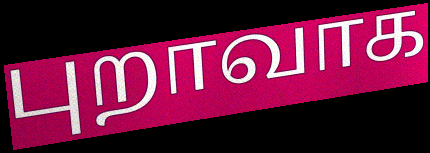
புறாவாக